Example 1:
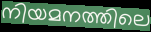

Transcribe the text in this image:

നിയമനത്തിലെ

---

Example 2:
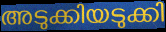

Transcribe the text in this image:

അടുക്കിയടുക്കി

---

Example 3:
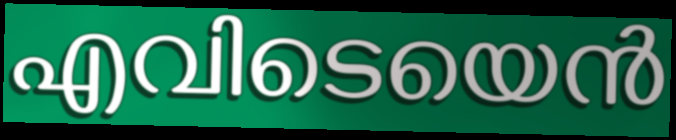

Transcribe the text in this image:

എവിടെയെൻ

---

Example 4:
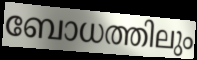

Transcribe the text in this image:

ബോധത്തിലും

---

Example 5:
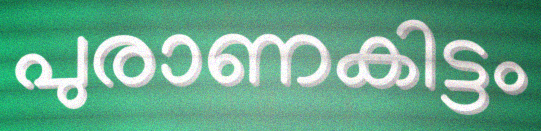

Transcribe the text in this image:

പുരാണകിട്ടം